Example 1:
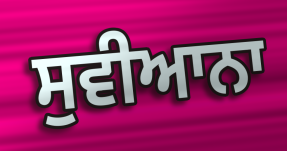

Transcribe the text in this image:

ਸੁਵੀਆਨਾ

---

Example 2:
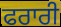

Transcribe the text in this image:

ਫਰਾਰੀ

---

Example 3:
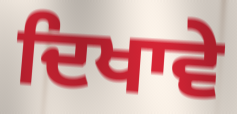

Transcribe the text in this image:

ਦਿਖਾਵੇ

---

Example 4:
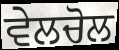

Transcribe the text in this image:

ਵੇਲਚੋਲ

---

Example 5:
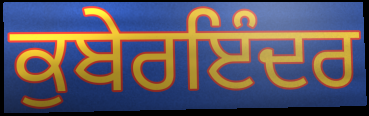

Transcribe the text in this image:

ਕੁਬੇਰਇੰਦਰ